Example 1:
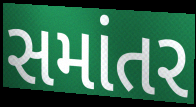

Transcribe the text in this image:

સમાંતર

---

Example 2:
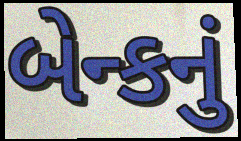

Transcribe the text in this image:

બેન્કનું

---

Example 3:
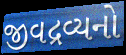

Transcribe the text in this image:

જીવદ્રવ્યનો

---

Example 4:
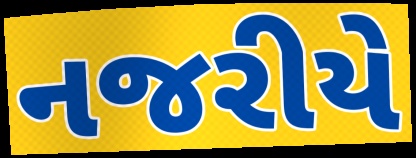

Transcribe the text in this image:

નજરીયે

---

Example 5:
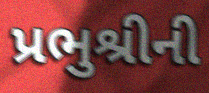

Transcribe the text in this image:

પ્રભુશ્રીની